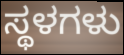
ಸ್ಥಳಗಳು